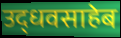
उद्धवसाहेब